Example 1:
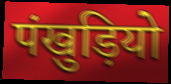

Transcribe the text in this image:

पंखुड़ियो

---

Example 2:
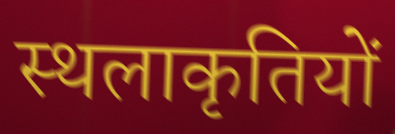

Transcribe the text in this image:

स्थलाकृतियों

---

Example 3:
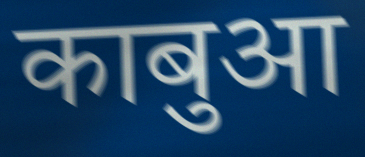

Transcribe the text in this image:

काबुआ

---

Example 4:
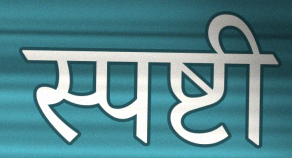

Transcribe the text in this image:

स्पष्टी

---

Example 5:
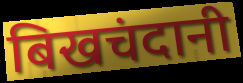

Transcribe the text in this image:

बिखचंदानी